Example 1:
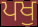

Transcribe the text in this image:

ਪਖੁ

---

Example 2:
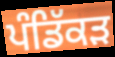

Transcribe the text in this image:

ਪੰਡਿੱਕੜ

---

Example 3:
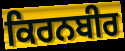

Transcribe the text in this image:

ਕਿਰਨਬੀਰ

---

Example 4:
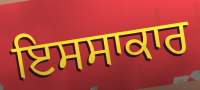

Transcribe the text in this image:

ਇਸਸਾਕਾਰ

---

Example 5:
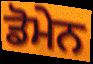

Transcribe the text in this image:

ਡੋਮੇਨ